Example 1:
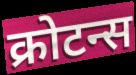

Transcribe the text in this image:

क्रोटन्स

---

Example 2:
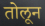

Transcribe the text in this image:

तोलून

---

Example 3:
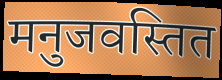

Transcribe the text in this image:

मनुजवस्तित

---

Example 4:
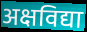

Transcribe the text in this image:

अक्षविद्या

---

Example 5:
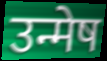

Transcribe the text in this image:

उन्मेष